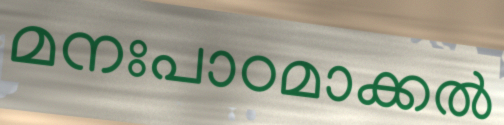
മനഃപാഠമാക്കൽ